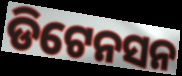
ଡିଟେନସନ